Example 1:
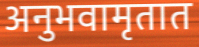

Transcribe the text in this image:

अनुभवामृतात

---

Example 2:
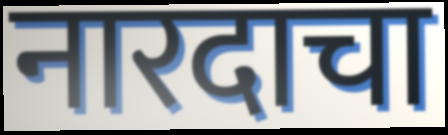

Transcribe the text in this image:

नारदाचा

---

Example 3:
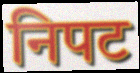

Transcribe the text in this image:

निपट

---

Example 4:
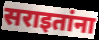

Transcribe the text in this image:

सराइतांना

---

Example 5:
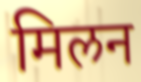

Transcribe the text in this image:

मिलन